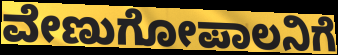
ವೇಣುಗೋಪಾಲನಿಗೆ